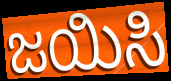
ಜಯಿಸಿ